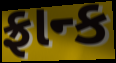
ફ્રાન્ક